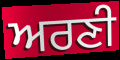
ਅਰਣੀ